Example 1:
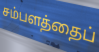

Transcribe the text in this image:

சம்பளத்தைப்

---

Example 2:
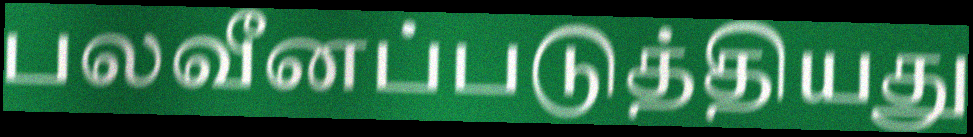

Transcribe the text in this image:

பலவீனப்படுத்தியது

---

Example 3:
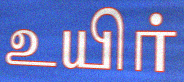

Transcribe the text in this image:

உயிர்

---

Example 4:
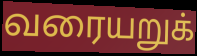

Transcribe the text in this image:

வரையறுக்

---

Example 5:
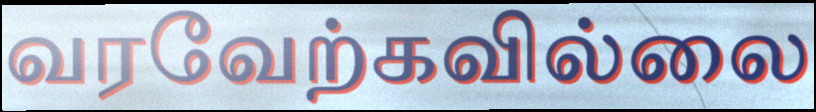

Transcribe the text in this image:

வரவேற்கவில்லை